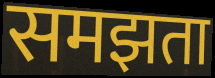
समझता